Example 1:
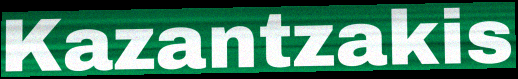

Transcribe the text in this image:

Kazantzakis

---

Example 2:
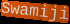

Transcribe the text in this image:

Swamiji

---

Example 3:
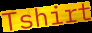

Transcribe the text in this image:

Tshirt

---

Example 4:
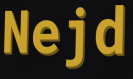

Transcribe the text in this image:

Nejd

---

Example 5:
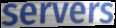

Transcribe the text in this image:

servers